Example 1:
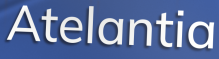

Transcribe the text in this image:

Atelantia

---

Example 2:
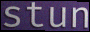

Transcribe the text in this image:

stun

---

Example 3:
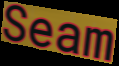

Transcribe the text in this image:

Seam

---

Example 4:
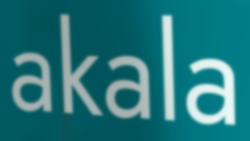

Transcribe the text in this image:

akala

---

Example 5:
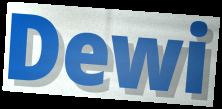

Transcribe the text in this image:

Dewi